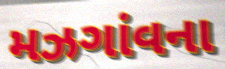
મઝગાંવના